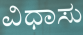
ವಿಧಾಸು